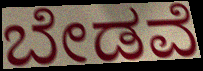
ಬೇಡವೆ